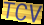
TCV